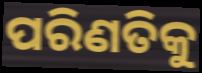
ପରିଣତିକୁ